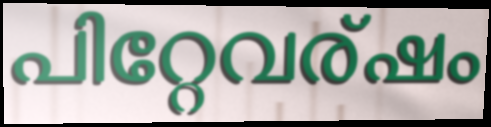
പിറ്റേവര്ഷം